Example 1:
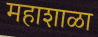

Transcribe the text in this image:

महाशाळा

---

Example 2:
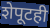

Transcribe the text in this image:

शेपूटही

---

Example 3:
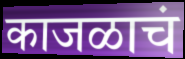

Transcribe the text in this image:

काजळाचं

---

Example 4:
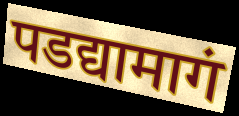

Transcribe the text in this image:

पडद्यामागं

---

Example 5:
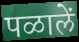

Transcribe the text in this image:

पळालें